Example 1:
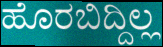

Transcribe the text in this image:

ಹೊರಬಿದ್ದಿಲ್ಲ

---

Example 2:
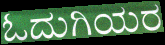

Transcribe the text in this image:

ಓದುಗಿಯರ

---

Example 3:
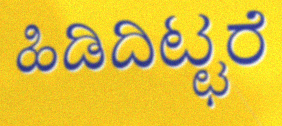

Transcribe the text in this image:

ಹಿಡಿದಿಟ್ಟರೆ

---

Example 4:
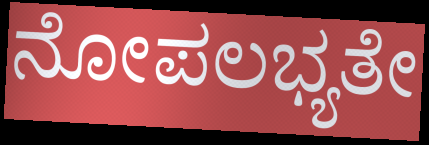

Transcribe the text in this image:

ನೋಪಲಭ್ಯತೇ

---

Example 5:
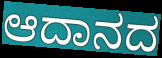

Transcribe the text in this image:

ಆದಾನದ